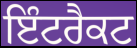
ਇੰਟਰੈਕਟ